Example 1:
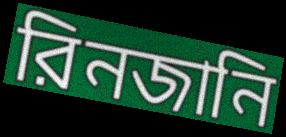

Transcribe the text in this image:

রিনজানি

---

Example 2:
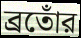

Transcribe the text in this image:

ব্রতোঁর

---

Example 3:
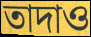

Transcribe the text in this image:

তাদাও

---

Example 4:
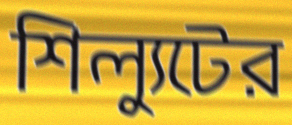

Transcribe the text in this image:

শিল্যুটের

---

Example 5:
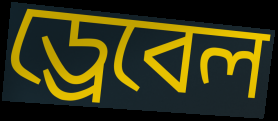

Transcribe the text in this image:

ড্রেবেল